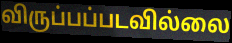
விருப்பப்படவில்லை